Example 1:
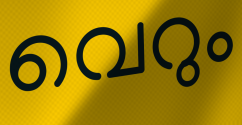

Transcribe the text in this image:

വെറും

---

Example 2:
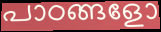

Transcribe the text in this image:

പാഠങ്ങളോ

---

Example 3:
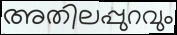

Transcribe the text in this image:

അതിലപ്പുറവും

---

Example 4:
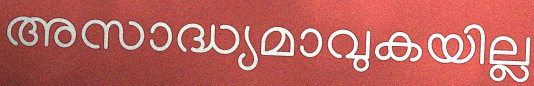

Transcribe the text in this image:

അസാദ്ധ്യമാവുകയില്ല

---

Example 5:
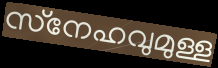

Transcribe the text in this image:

സ്‌നേഹവുമുള്ള